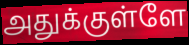
அதுக்குள்ளே